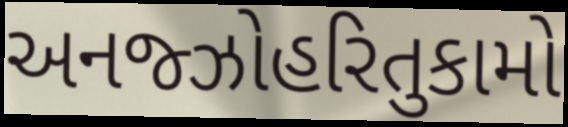
અનજ્ઝોહરિતુકામો